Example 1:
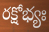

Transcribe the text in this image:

రక్షోభ్యః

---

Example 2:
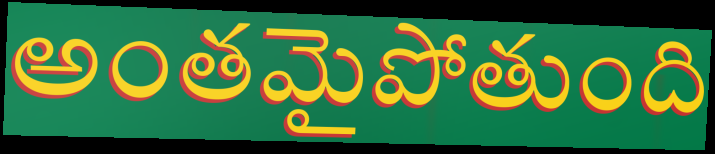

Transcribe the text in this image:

అంతమైపోతుంది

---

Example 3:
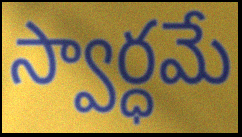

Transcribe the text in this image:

స్వార్ధమే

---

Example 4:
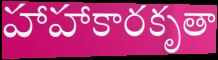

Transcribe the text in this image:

హాహాకారకృతా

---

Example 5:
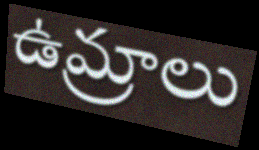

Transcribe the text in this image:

ఉమ్రాలు